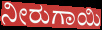
ನೀರುಗಾಯಿ